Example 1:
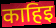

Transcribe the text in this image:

काहिइ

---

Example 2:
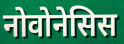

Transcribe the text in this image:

नोवोनेसिस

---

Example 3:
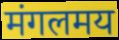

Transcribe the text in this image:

मंगलमय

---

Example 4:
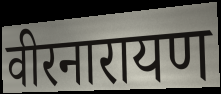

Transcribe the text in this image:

वीरनारायण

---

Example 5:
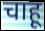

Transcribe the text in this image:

चाहू